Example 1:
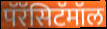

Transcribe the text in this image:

पॅरॅसिटॅमॉल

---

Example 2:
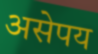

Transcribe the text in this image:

असेपय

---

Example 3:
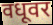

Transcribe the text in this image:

वधूवर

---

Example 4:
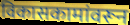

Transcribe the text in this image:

विकासकामांवरून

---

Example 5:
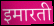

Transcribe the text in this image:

इमारती